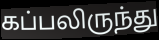
கப்பலிருந்து